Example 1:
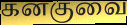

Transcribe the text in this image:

கனகுவை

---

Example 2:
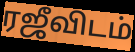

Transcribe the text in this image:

ரஜீவிடம்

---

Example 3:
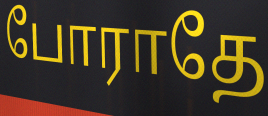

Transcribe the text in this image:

போராதே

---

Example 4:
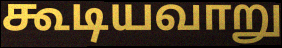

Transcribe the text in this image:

கூடியவாறு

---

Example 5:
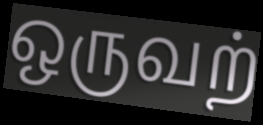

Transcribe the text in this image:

ஒருவற்